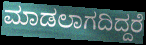
ಮಾಡಲಾಗದಿದ್ದರೆ